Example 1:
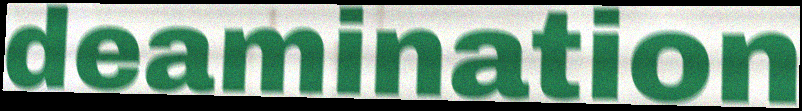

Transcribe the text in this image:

deamination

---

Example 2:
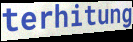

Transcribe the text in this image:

terhitung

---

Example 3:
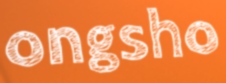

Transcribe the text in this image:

ongsho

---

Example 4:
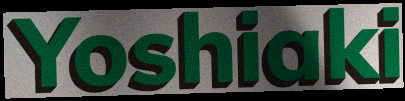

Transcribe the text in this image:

Yoshiaki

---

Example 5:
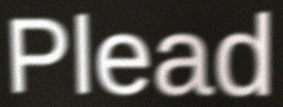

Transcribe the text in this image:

Plead